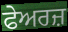
ਫੇਅਰਜ਼